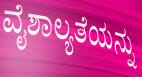
ವೈಶಾಲ್ಯತೆಯನ್ನು